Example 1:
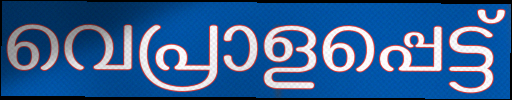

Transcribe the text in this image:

വെപ്രാളപ്പെട്ട്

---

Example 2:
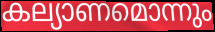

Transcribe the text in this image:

കല്യാണമൊന്നും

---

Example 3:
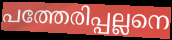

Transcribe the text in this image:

പത്തേരിപ്പല്ലനെ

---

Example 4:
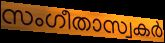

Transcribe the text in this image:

സംഗീതാസ്വകർ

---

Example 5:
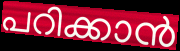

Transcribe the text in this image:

പറിക്കാൻ